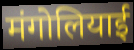
मंगोलियाई